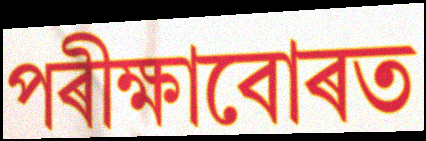
পৰীক্ষাবোৰত